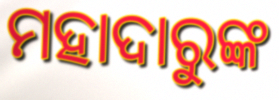
ମହାଦାରୁଙ୍କ